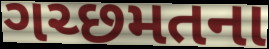
ગચ્છમતના